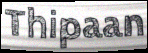
Thipaan